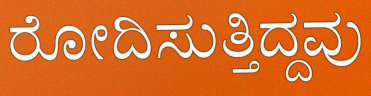
ರೋದಿಸುತ್ತಿದ್ದವು